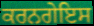
ਕਰਨਗੇਇਸ